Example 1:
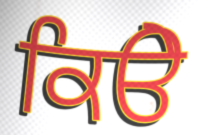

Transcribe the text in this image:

ਕਿੳੇ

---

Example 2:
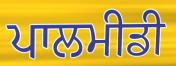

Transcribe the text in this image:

ਪਾਲਮੀਡੀ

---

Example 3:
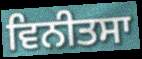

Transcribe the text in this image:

ਵਿਨੀਤਸਾ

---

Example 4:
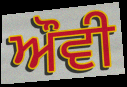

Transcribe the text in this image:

ਔਵੀ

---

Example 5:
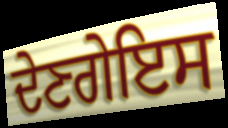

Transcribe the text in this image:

ਦੇਣਗੇਇਸ